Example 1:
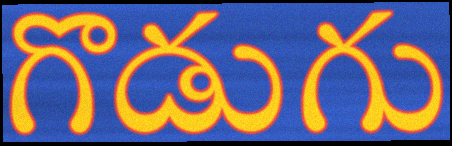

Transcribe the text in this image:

గొడుగు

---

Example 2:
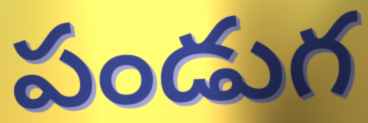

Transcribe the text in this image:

పండుగ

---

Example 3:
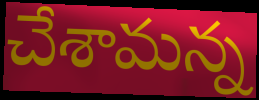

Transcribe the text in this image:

చేశామన్న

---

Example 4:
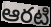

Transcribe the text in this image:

ఆరటి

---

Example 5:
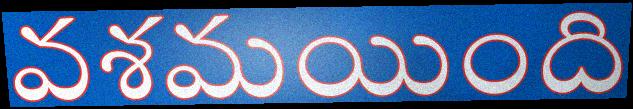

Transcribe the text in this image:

వశమయింది